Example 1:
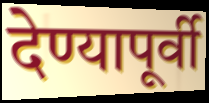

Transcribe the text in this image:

देण्यापूर्वी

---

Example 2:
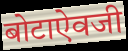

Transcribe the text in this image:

बोटाऐवजी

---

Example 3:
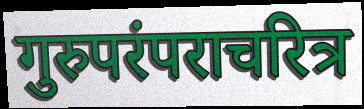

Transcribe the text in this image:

गुरुपरंपराचरित्र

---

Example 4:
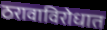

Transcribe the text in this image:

ठरावाविरोधात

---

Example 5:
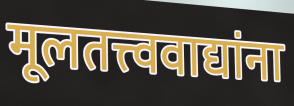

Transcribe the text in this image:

मूलतत्त्ववाद्यांना